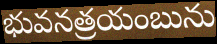
భువనత్రయంబును